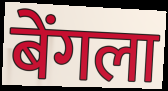
बेंगला